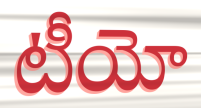
టీయో